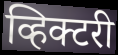
व्हिक्टरी